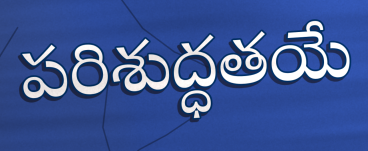
పరిశుద్ధతయే